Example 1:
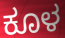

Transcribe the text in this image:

ಕೂಳ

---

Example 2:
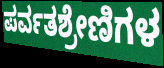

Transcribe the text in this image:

ಪರ್ವತಶ್ರೇಣಿಗಳ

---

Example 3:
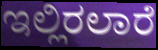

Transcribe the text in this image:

ಇಲ್ಲಿರಲಾರೆ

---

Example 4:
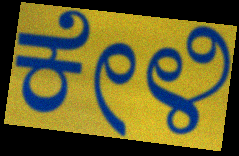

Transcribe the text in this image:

ಕೇಳಿ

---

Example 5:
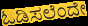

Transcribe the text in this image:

ಓಡಿಸಲೆಂದೇ